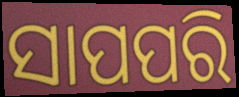
ସାପପରି